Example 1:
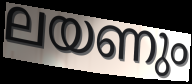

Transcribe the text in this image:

ലയണും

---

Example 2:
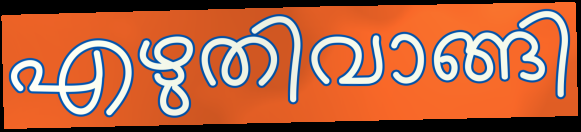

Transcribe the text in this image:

എഴുതിവാങ്ങി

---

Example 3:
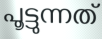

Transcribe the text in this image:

പൂട്ടുന്നത്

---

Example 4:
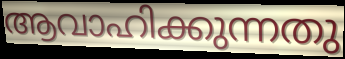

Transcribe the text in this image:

ആവാഹിക്കുന്നതു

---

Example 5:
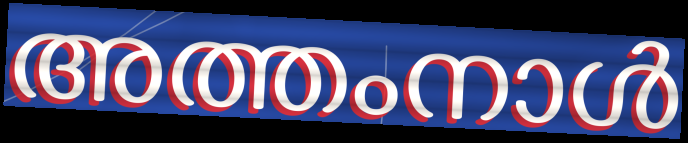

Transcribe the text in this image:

അത്തംനാൾ